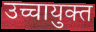
उच्‍चायुक्‍त